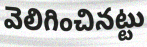
వెలిగించినట్టు